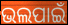
ଭଲପାଇଁ